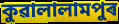
কুৱালালামপুৰ